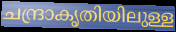
ചന്ദ്രാകൃതിയിലുള്ള